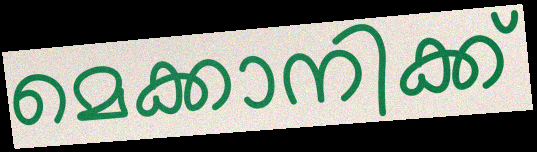
മെക്കാനിക്ക്